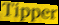
Tipper